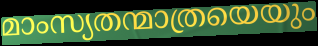
മാംസ്യതന്മാത്രയെയും